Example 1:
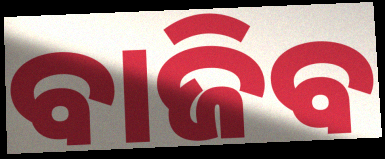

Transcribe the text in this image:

ବାଜିବ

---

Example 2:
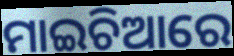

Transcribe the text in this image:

ମାଇଚିଆରେ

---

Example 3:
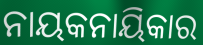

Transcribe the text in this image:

ନାୟକନାୟିକାର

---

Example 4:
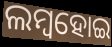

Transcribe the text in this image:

ଲମ୍ୱହୋଇ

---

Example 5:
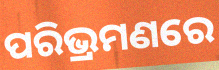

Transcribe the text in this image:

ପରିଭ୍ରମଣରେ